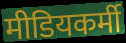
मीडियकर्मी